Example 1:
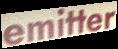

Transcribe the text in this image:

emitter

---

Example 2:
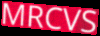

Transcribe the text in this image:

MRCVS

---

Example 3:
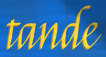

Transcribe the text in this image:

tande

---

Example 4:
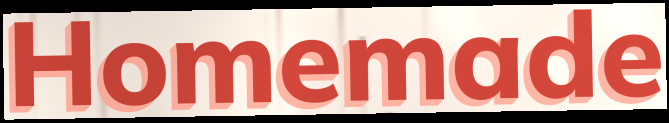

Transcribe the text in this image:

Homemade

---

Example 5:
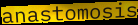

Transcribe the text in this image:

anastomosis